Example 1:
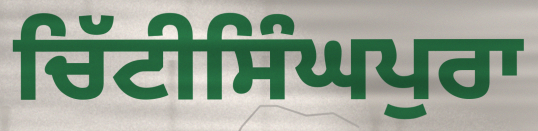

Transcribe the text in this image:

ਚਿੱਟੀਸਿੰਘਪੁਰਾ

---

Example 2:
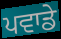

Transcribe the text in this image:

ਪਵਾਡੇ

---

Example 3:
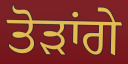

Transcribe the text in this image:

ਤੋੜਾਂਗੇ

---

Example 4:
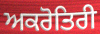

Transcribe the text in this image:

ਅਕਰੋਤਿਰੀ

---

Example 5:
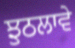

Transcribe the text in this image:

ਝੁਠਲਾਵੇ